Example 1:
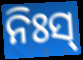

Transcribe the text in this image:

ନିଃସ୍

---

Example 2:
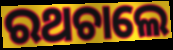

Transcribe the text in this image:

ରଥଚାଲେ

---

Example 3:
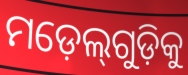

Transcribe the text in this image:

ମଡ଼େଲ୍‌ଗୁଡ଼ିକୁ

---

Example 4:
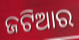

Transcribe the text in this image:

ଜଟିଆର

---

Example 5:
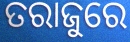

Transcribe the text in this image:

ତରାଜୁରେ